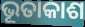
ଭୂତାକାଶ